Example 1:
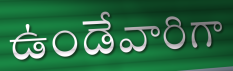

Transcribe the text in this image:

ఉండేవారిగా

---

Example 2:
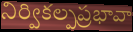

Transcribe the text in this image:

నిర్వికల్పప్రభావా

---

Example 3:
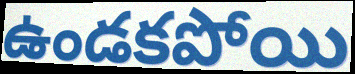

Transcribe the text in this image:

ఉండకపోయి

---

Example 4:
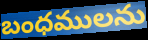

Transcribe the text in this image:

బంధములను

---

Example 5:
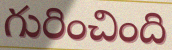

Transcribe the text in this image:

గురించింది